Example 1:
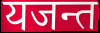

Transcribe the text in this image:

यजन्त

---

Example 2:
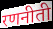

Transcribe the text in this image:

रणनीती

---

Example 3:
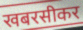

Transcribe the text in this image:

खबरसीकर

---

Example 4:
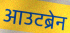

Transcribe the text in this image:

आउटब्रेन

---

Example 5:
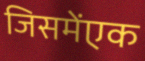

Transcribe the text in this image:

जिसमेंएक